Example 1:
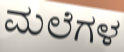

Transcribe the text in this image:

ಮಲೆಗಳ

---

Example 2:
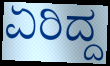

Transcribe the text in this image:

ಏರಿದ್ದ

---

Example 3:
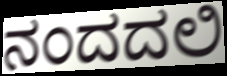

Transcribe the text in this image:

ನಂದದಲಿ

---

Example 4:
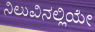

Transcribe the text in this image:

ನಿಲುವಿನಲ್ಲಿಯೇ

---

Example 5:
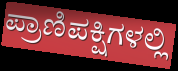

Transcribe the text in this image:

ಪ್ರಾಣಿಪಕ್ಷಿಗಳಲ್ಲಿ